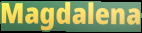
Magdalena